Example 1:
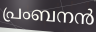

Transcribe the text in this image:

പ്രംബനൻ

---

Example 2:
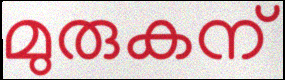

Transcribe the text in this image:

മുരുകന്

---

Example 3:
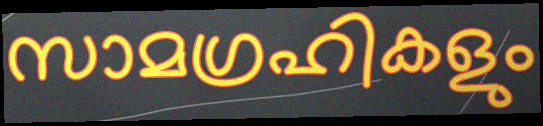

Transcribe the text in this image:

സാമഗ്രഹികളും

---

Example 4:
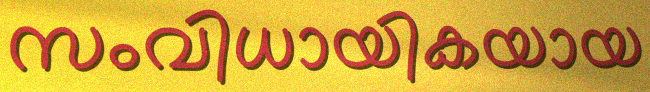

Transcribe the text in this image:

സംവിധായികയായ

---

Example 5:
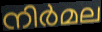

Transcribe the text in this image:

നിർമല